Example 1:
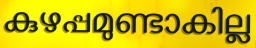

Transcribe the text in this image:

കുഴപ്പമുണ്ടാകില്ല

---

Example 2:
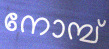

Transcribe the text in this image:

നോമ്പ്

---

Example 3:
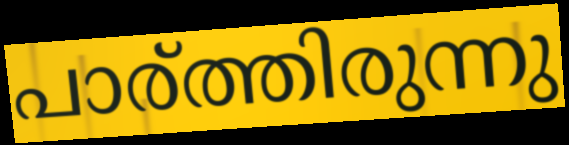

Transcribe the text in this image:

പാര്ത്തിരുന്നു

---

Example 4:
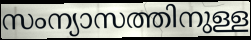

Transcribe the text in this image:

സംന്യാസത്തിനുള്ള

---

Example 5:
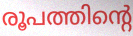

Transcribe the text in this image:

രൂപത്തിന്റെ